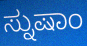
ಸ್ನುಷಾಂ